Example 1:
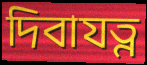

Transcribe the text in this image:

দিবাযত্ন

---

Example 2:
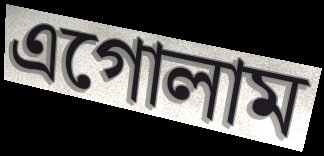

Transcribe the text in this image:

এগোলাম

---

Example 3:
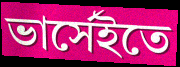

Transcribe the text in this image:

ভার্সেইতে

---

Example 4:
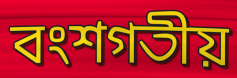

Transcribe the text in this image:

বংশগতীয়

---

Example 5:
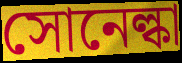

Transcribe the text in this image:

সোনেল্কা